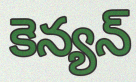
కెన్యన్